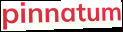
pinnatum